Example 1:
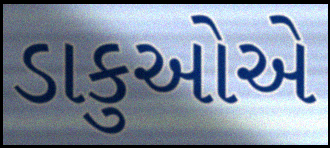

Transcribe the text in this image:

ડાકુઓએ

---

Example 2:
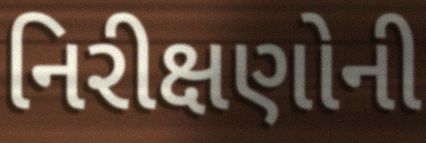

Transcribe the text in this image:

નિરીક્ષણોની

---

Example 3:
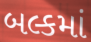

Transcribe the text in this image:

બલ્કમાં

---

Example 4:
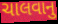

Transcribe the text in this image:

ચાલવાનુ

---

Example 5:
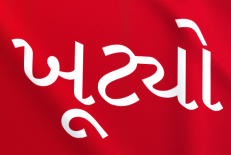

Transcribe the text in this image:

ખૂટ્યો